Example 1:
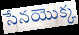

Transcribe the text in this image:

సేనయొక్క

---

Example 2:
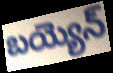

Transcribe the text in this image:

బయ్యెన్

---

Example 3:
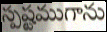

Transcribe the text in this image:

స్పష్టముగాను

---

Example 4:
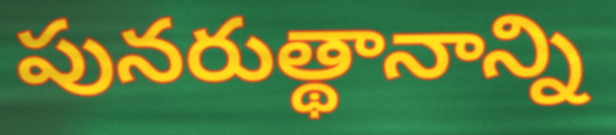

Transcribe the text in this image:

పునరుత్థానాన్ని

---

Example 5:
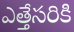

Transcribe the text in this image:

ఎత్తేసరికి